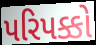
પરિપક્કો